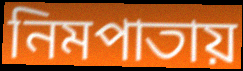
নিমপাতায়